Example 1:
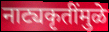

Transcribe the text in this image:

नाट्यकृतींमुळे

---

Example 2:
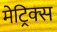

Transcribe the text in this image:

मेट्रिक्‍स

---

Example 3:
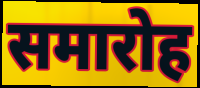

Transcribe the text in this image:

समारोह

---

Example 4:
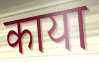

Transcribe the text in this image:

काया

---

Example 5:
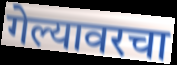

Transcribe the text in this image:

गेल्यावरचा